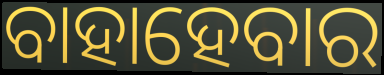
ବାହାହେବାର